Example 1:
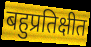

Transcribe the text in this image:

बहुप्रतिक्षीत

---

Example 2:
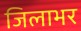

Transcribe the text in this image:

जिलाभर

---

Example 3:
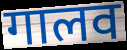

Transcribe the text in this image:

गालव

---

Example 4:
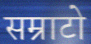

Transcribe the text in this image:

सम्राटो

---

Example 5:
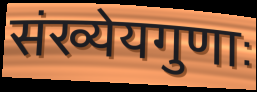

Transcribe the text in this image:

संख्येयगुणाः